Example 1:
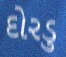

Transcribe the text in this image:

દોરડુ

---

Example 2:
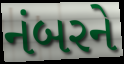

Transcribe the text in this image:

નંબરને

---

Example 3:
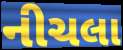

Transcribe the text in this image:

નીચલા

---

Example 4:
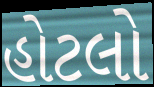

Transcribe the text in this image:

હોટલો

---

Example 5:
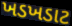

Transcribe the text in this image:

ખડખડાટ